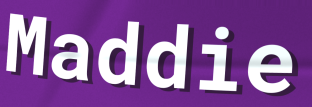
Maddie